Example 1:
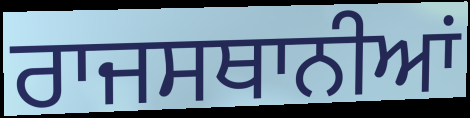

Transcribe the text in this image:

ਰਾਜਸਥਾਨੀਆਂ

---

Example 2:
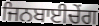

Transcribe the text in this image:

ਜਿਨਬਾਈਚੇਂਗ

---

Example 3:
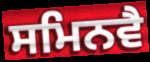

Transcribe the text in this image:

ਸਮਿਨਵੈ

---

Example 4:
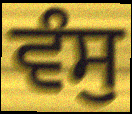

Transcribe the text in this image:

ਵੰਸੁ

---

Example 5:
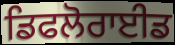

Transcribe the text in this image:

ਡਿਫਲੋਰਾਈਡ